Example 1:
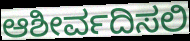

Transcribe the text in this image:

ಆಶೀರ್ವದಿಸಲಿ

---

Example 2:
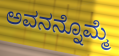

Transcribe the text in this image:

ಅವನನ್ನೊಮ್ಮೆ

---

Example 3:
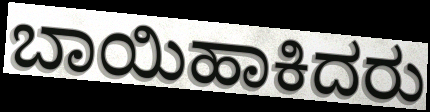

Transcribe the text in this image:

ಬಾಯಿಹಾಕಿದರು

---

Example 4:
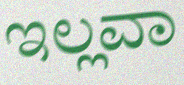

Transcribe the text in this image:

ಇಲ್ಲವಾ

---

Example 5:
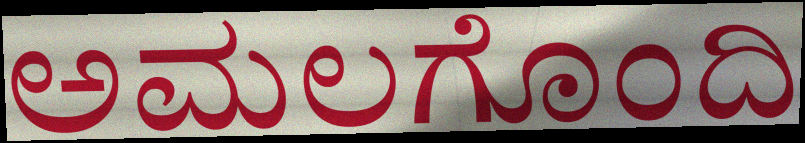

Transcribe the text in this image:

ಅಮಲಗೊಂದಿ